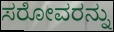
ಸರೋವರನ್ನು